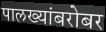
पालख्यांबरोबर